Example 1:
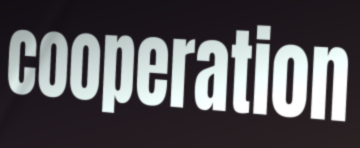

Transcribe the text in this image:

cooperation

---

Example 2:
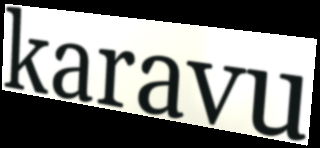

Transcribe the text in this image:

karavu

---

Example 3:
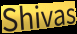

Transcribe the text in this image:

Shivas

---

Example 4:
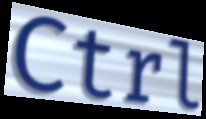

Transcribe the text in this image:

Ctrl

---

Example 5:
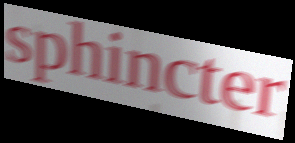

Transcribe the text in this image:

sphincter